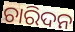
ଚାରିଦନ